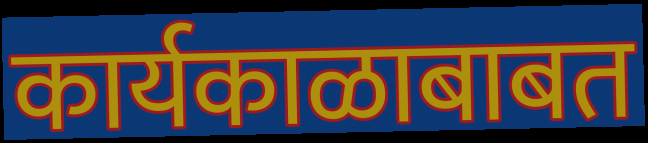
कार्यकाळाबाबत